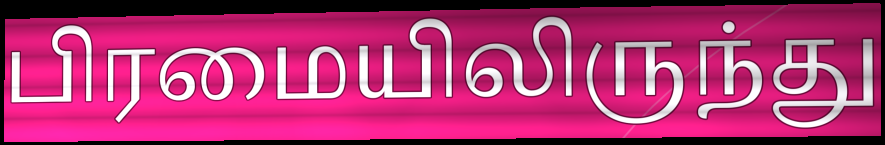
பிரமையிலிருந்து